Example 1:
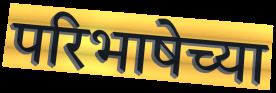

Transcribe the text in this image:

परिभाषेच्या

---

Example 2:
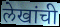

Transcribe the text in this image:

लेखांची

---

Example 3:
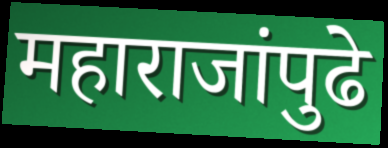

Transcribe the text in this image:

महाराजांपुढे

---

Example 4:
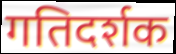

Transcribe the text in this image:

गतिदर्शक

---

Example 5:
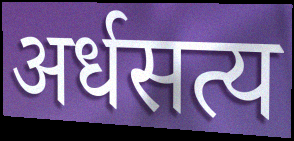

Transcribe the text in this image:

अर्धसत्य